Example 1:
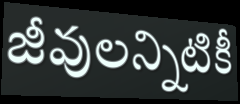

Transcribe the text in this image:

జీవులన్నిటికీ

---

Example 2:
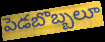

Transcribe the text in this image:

పెడబొబ్బలూ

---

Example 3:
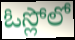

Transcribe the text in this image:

ఓస్లోలో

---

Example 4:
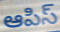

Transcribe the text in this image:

ఆపిస్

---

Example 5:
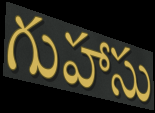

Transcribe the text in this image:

గుహాసు